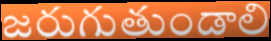
జరుగుతుండాలి